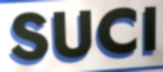
SUCI